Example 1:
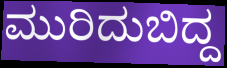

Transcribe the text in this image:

ಮುರಿದುಬಿದ್ದ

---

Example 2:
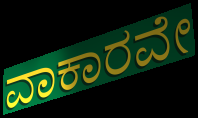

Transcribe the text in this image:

ವಾಕಾರವೇ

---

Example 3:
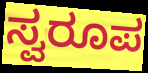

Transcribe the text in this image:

ಸ್ವರೂಪ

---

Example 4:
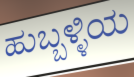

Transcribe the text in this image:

ಹುಬ್ಬಳ್ಳಿಯ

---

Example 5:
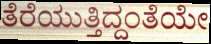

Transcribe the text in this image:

ತೆರೆಯುತ್ತಿದ್ದಂತೆಯೇ